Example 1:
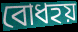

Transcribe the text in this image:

বোধহয়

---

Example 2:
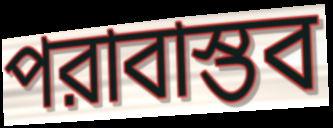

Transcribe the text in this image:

পরাবাস্তব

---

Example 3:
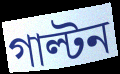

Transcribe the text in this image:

গাল্টন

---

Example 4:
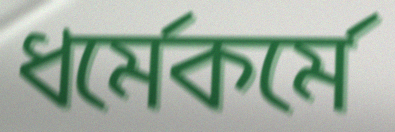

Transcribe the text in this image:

ধর্মেকর্মে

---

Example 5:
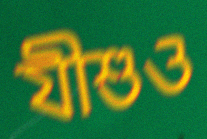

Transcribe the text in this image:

যীশুও